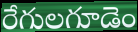
రేగులగూడెం